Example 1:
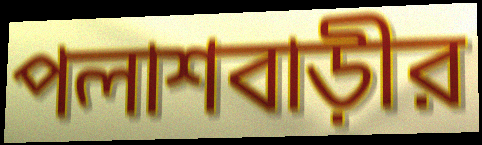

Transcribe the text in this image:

পলাশবাড়ীর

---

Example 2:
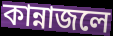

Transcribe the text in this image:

কান্নাজলে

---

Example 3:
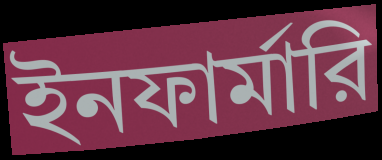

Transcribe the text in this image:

ইনফার্মারি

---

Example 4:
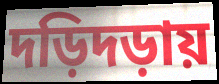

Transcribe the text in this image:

দড়িদড়ায়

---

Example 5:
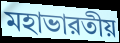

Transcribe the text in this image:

মহাভারতীয়